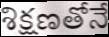
శిక్షణతోనే